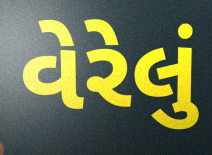
વેરેલું